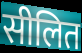
सीलित